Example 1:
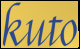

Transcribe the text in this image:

kuto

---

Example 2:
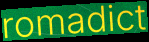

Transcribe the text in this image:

romadict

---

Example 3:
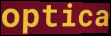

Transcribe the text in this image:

optica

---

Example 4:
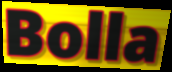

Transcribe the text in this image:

Bolla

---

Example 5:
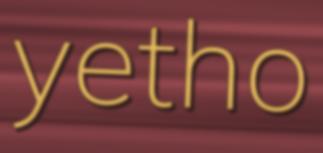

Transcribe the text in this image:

yetho